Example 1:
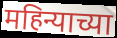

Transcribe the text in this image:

महिन्याच्या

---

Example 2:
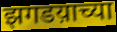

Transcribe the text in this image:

झगडय़ाच्या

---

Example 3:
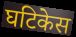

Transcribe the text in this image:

घटिकेस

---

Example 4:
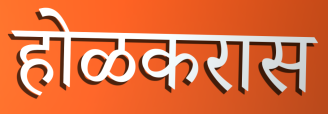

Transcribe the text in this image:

होळकरास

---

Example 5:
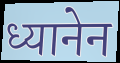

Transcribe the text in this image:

ध्यानेन